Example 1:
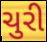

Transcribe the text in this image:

ચુરી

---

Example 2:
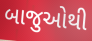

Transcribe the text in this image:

બાજુઓથી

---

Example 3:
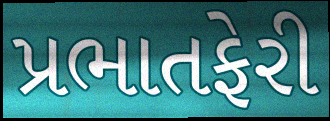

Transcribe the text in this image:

પ્રભાતફેરી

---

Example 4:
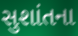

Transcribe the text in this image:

સુશાંતના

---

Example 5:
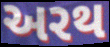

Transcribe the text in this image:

અરથ